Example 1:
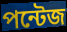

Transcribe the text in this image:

পন্টেজ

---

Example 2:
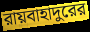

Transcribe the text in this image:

রায়বাহাদুরের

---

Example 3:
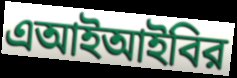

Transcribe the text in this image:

এআইআইবির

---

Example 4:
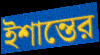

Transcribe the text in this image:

ইশান্তের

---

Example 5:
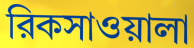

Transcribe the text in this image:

রিকসাওয়ালা